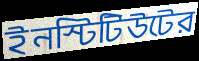
ইনস্টিটিউটের